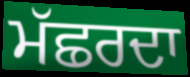
ਮੱਛਰਦਾ